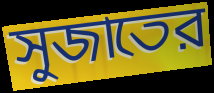
সুজাতের